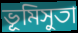
ভূমিসুতা